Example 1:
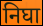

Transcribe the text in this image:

निघा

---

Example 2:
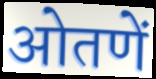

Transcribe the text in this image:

ओतणें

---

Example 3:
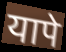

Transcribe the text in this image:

यापे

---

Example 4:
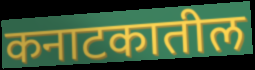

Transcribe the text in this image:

कनाटकातील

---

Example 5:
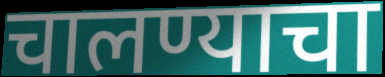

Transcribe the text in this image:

चालण्याचा